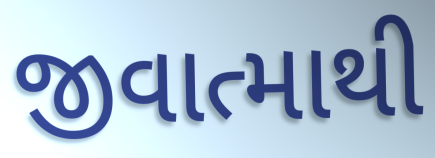
જીવાત્માથી